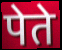
पेते